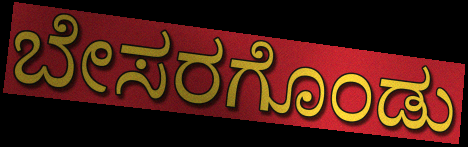
ಬೇಸರಗೊಂಡು